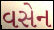
વસેન